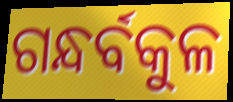
ଗନ୍ଧର୍ବକୁଳ